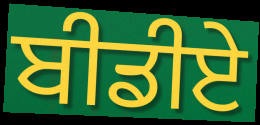
ਬੀਡੀਏ